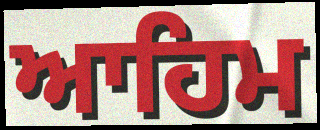
ਆਹਿਮ